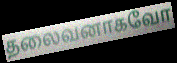
தலைவனாகவோ